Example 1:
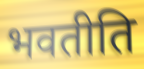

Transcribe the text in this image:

भवतीति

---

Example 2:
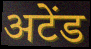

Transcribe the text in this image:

अटेंड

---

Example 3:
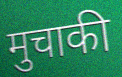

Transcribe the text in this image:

मुचाकी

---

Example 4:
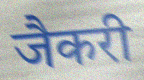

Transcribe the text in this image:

जैकरी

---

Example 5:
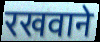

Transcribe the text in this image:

रखवाने